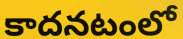
కాదనటంలో